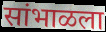
सांभाळला